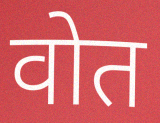
वोत